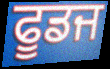
ਫੂਡਜ